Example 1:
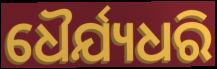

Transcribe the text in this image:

ଧୈର୍ଯ୍ୟଧରି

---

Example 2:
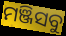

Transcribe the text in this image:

ମଞ୍ଜିସବୁ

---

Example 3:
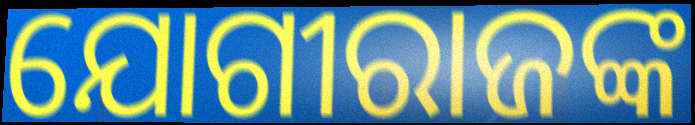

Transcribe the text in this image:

ଯୋଗୀରାଜଙ୍କ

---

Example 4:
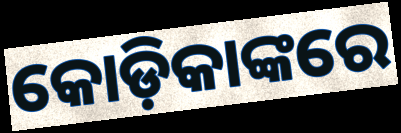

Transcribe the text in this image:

କୋଡ଼ିକାଙ୍କରେ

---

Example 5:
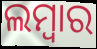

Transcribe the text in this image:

ଲମ୍ୱାର